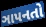
ઞાપનતો